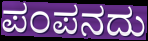
ಪಂಪನದು